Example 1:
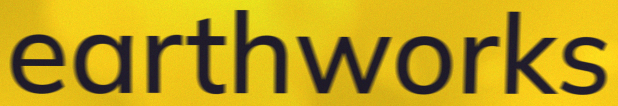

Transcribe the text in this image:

earthworks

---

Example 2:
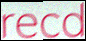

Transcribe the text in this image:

recd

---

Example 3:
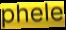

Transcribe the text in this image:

phele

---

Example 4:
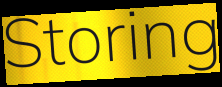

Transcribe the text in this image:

Storing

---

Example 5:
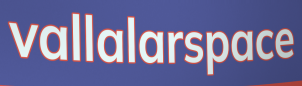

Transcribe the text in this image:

vallalarspace